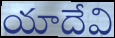
యాదేవి